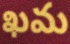
ఖమ